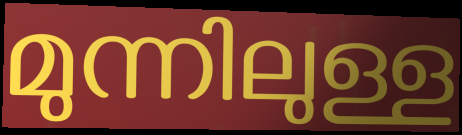
മുന്നിലുള്ള